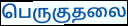
பெருகுதலை